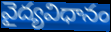
వైద్యవిధానం